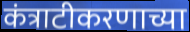
कंत्राटीकरणाच्या